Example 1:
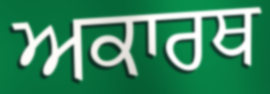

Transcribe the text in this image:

ਅਕਾਰਥ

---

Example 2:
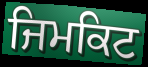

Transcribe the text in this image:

ਜਿਮਕਿਟ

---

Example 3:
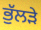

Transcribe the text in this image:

ਭੁੱਲੜੇ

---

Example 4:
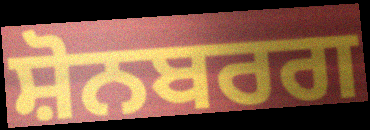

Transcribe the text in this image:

ਸ਼ੋਨਬਰਗ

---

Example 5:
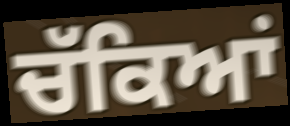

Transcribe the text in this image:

ਚੱਕਿਆਂ